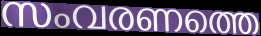
സംവരണത്തെ